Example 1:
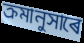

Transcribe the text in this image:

ক্ৰমানুসাৰে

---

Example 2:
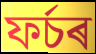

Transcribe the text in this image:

ফৰ্চৰ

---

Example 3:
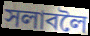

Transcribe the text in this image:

সলাবলৈ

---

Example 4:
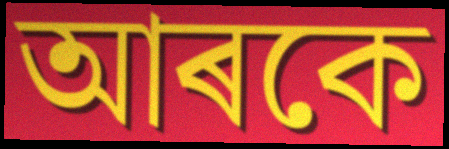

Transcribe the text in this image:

আৰকে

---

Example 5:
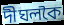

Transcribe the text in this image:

দীঘলকৈ